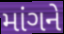
માંગને